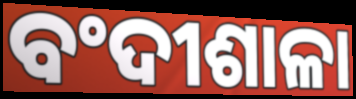
ବଂଦୀଶାଳା